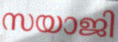
സയാജി